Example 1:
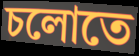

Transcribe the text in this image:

চলোতে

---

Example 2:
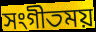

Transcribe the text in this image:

সংগীতময়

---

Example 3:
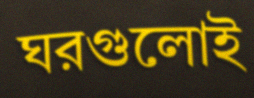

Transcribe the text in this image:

ঘরগুলোই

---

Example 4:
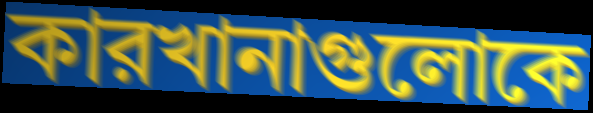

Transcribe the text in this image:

কারখানাগুলোকে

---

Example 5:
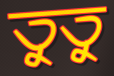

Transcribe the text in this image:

তুতু